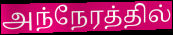
அந்நேரத்தில்